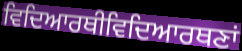
ਵਿਦਿਆਰਥੀਵਿਦਿਆਰਥਣਾਂ